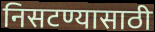
निसटण्यासाठी